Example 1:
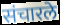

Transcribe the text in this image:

संचारले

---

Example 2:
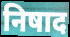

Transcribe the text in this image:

निषाद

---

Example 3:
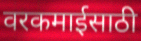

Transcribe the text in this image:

वरकमाईसाठी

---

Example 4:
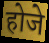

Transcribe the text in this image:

होजे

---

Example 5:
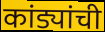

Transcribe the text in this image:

कांड्यांची